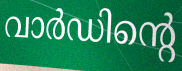
വാർഡിന്റെ